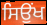
ਸਿਉਂਖ